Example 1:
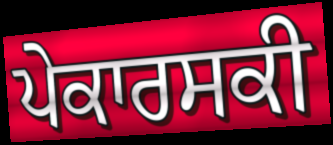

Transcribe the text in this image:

ਪੇਕਾਰਸਕੀ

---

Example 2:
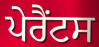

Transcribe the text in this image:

ਪੇਰੈਂਟਸ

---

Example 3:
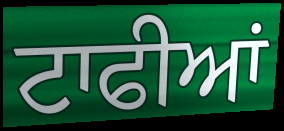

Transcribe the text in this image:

ਟਾਫੀਆਂ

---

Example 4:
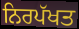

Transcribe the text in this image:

ਨਿਰਪੱਖਤ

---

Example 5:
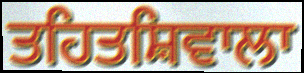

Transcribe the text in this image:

ਤਹਿਤਸ਼ਿਵਾਲਾ